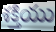
శక్తియు